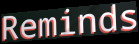
Reminds